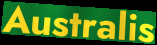
Australis